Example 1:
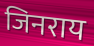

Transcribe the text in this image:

जिनराय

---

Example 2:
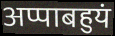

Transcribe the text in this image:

अप्पाबहुयं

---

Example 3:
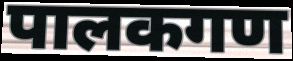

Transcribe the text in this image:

पालकगण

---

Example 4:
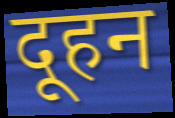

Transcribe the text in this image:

दूहन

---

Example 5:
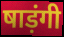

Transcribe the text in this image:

षाड़ंगी